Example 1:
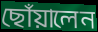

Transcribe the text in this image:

ছোঁয়ালেন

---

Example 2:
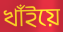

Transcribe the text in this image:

খাঁইয়ে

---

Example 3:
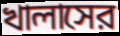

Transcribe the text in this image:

খালাসের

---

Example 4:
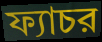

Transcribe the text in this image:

ফ্যাচর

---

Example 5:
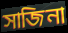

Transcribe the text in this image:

সাজিনা